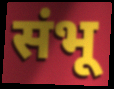
संभू